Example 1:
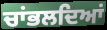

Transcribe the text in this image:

ਚਾਂਭਲਦਿਆਂ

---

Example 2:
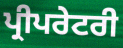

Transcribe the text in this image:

ਪ੍ਰੀਪਰੇਟਰੀ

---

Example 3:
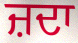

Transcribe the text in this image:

ਜ਼ਦਾ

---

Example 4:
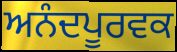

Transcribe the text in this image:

ਅਨੰਦਪੂਰਵਕ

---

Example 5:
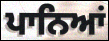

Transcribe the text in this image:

ਪਾਨਿਆਂ